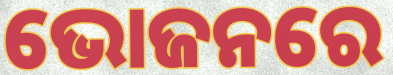
ଭୋଜନରେ